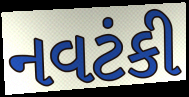
નવટંકી